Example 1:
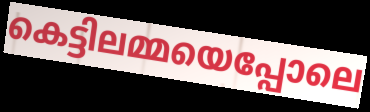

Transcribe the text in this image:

കെട്ടിലമ്മയെപ്പോലെ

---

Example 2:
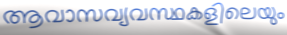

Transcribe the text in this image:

ആവാസവ്യവസ്ഥകളിലെയും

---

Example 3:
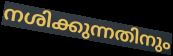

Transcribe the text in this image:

നശിക്കുന്നതിനും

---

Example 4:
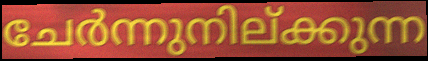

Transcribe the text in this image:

ചേർന്നുനില്ക്കുന്ന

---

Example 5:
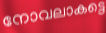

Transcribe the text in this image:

നോവലാകട്ടെ